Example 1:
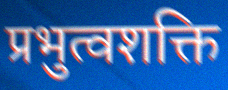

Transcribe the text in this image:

प्रभुत्वशक्ति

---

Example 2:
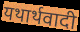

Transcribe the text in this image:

यथार्थवादी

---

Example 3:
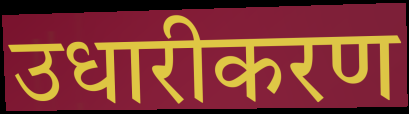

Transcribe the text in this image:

उधारीकरण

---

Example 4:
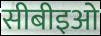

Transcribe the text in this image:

सीबीइओ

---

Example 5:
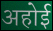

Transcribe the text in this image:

अहोई